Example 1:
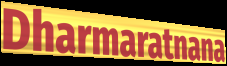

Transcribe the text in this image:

Dharmaratnana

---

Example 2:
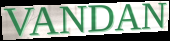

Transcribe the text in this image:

VANDAN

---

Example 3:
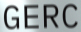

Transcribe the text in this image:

GERC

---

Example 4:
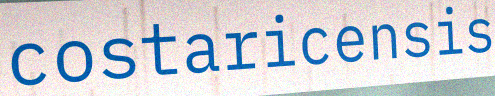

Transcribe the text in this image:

costaricensis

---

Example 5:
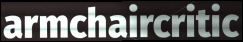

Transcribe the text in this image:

armchaircritic